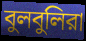
বুলবুলিরা